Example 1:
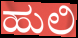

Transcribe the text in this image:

ಹುಲಿ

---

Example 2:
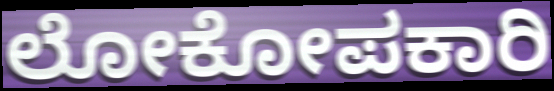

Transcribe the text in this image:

ಲೋಕೋಪಕಾರಿ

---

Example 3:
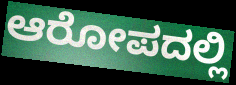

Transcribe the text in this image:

ಆರೋಪದಲ್ಲಿ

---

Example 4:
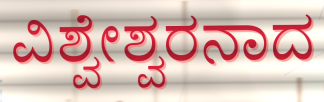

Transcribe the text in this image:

ವಿಶ್ವೇಶ್ವರನಾದ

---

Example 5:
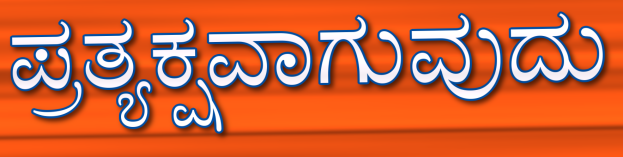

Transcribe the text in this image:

ಪ್ರತ್ಯಕ್ಷವಾಗುವುದು